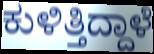
ಕುಳಿತ್ತಿದ್ದಾಳೆ